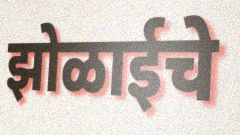
झोळाईचे